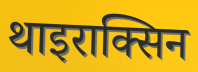
थाइराक्सिन